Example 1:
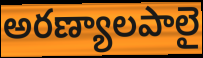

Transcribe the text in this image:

అరణ్యాలపాలై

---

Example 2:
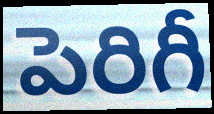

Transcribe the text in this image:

పెరిగీ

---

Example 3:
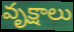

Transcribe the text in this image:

వృక్షాలు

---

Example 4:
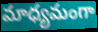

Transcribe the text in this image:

మాధ్యమంగా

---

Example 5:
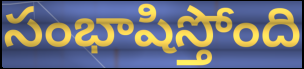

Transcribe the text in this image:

సంభాషిస్తోంది